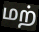
மற்